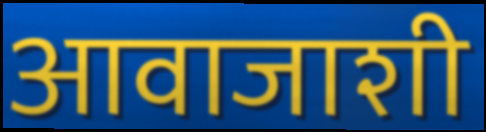
आवाजाशी